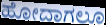
ಹೋದಾಗಲೂ